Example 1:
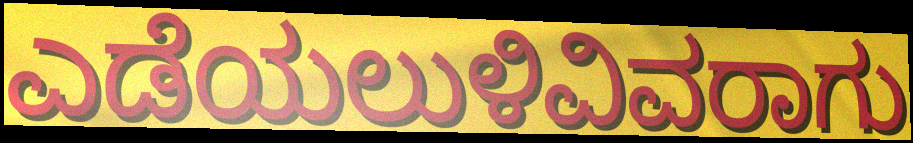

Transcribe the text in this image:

ಎಡೆಯಲುಳಿವಿವರಾಗು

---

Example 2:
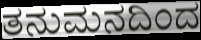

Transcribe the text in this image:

ತನುಮನದಿಂದ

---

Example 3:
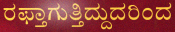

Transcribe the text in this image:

ರಫ್ತಾಗುತ್ತಿದ್ದುದರಿಂದ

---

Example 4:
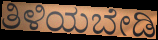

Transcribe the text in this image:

ತಿಳಿಯಬೇಡಿ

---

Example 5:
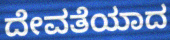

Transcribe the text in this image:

ದೇವತೆಯಾದ